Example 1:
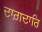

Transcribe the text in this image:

ਦਾਗ਼ਦਾਰਿ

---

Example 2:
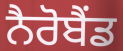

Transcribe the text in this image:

ਨੈਰੋਬੈਂਡ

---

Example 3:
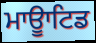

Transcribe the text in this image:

ਮਾਊਾਟਿਡ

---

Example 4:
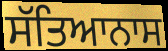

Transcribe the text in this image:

ਸੱਤਿਆਨਾਸ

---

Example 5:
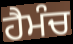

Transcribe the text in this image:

ਹੈਮੰਚ